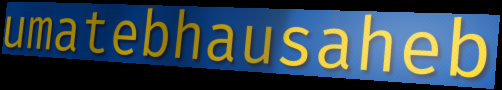
umatebhausaheb